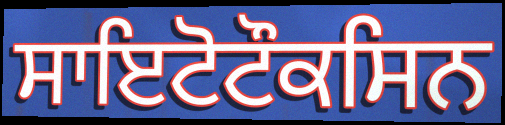
ਸਾਇਟੋਟੌਕਸਿਨ